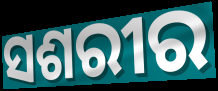
ସଶରୀର